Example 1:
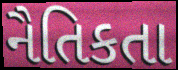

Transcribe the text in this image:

નૈતિકતા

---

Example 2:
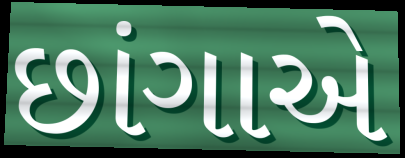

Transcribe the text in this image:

છાંગાએ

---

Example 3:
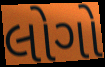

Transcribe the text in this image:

લોગો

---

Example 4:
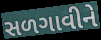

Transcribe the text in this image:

સળગાવીને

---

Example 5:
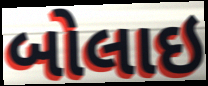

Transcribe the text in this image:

બોલાઇ